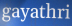
gayathri